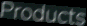
Products